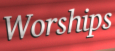
Worships